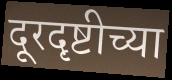
दूरदृष्टीच्या